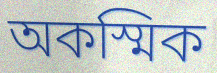
অকস্মিক